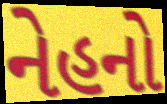
નેહનો